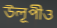
উলূপীও